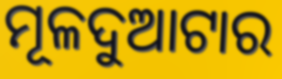
ମୂଳଦୁଆଟାର